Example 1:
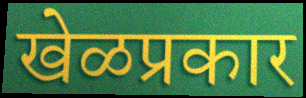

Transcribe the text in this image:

खेळप्रकार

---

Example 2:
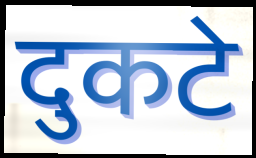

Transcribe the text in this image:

दुकटे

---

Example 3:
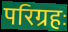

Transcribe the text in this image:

परिग्रहः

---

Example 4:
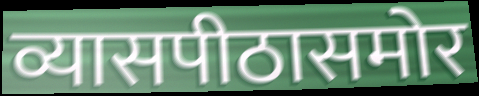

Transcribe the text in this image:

व्यासपीठासमोर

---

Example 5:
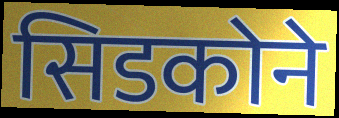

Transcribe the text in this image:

सिडकोने